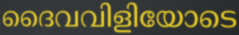
ദൈവവിളിയോടെ